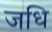
जधि